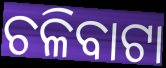
ଚଳିବାଟା